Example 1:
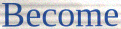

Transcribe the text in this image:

Become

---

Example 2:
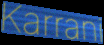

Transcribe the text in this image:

Karrani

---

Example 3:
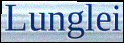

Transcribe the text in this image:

Lunglei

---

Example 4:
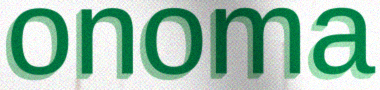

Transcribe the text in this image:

onoma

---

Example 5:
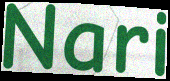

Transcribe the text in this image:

Nari